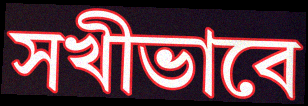
সখীভাবে